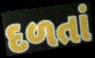
દળતાં